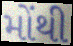
મોંથી